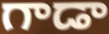
గాడా